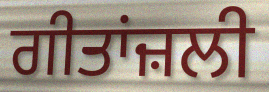
ਗੀਤਾਂਜ਼ਲੀ